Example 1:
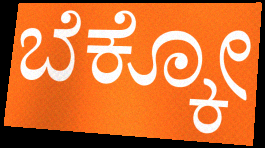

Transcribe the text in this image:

ಬೆಕ್ಕೋ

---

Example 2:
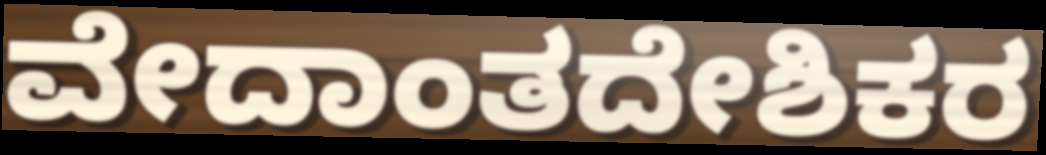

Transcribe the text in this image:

ವೇದಾಂತದೇಶಿಕರ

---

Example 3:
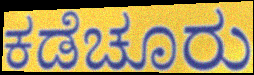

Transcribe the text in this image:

ಕಡೆಚೂರು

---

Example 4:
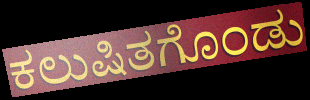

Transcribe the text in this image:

ಕಲುಷಿತಗೊಂಡು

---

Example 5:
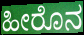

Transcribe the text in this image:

ಹೀರೊನ